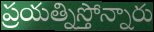
ప్రయత్నిస్తోన్నారు